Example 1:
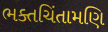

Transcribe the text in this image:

ભક્તચિંતામણિ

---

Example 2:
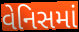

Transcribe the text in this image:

વેનિસમાં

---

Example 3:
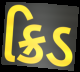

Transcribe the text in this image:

ક્રિડ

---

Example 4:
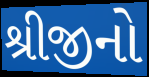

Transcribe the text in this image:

શ્રીજીનો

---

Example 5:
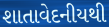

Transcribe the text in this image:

શાતાવેદનીયથી